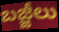
బజ్జీలు